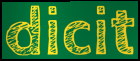
dicit